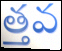
త్తవ